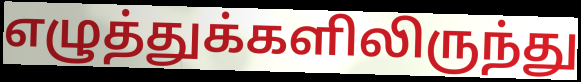
எழுத்துக்களிலிருந்து